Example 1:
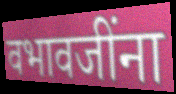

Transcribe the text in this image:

वभावजींना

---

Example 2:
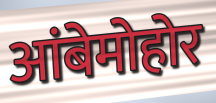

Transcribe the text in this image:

आंबेमोहोर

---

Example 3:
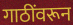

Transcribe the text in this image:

गाठींवरून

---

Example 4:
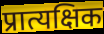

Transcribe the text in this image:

प्रात्यक्षिक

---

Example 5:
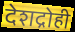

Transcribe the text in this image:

देशद्रोही